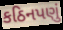
કઠિનપણું